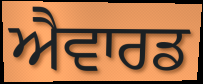
ਐਵਾਰਡ